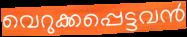
വെറുക്കപ്പെട്ടവൻ